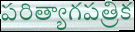
పరిత్యాగపత్రిక